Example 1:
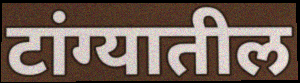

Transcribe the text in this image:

टांग्यातील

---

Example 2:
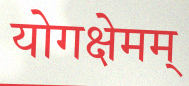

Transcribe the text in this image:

योगक्षेमम्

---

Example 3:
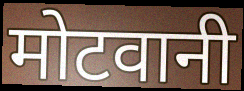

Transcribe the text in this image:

मोटवानी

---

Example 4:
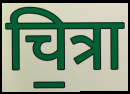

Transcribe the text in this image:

चि॒त्रा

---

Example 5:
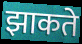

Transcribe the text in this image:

झाकते